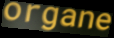
organe